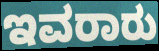
ಇವರಾರು